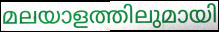
മലയാളത്തിലുമായി